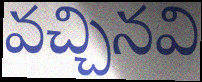
వచ్చినవి